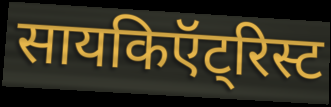
सायकिऍट्रिस्ट